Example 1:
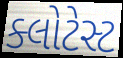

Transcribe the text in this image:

ક્લોટેસ્ટ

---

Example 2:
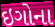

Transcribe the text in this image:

ઇગોના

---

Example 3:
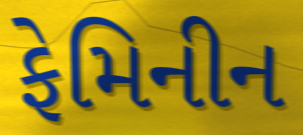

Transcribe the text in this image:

ફેમિનીન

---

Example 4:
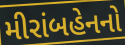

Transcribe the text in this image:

મીરાંબહેનનો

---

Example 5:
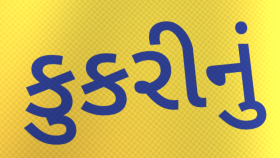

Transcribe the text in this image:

કુકરીનું